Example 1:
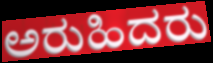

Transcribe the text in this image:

ಅರುಹಿದರು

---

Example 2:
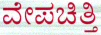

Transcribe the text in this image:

ವೇಪಚಿತ್ತಿ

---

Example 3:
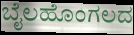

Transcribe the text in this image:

ಬೈಲಹೊಂಗಲದ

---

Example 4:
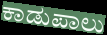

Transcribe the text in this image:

ಕಾಡುಪಾಲು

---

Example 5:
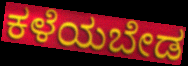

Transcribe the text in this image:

ಕಳೆಯಬೇಡ